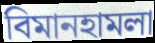
বিমানহামলা